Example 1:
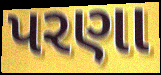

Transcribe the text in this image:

પરણા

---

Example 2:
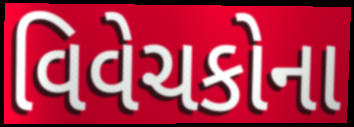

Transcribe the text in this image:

વિવેચકોના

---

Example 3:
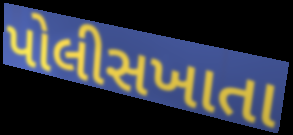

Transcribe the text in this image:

પોલીસખાતા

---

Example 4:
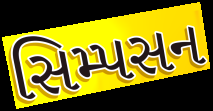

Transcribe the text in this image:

સિમ્પસન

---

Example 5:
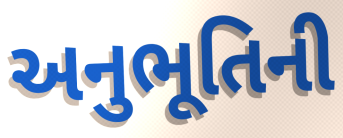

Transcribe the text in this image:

અનુભૂતિની